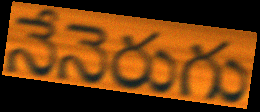
నేనెరుగు